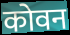
कोवन